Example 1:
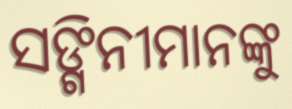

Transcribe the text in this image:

ସଙ୍ଗିନୀମାନଙ୍କୁ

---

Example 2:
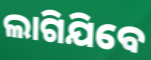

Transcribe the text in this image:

ଲାଗିଯିବେ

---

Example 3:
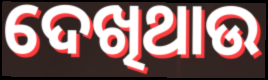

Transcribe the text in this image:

ଦେଖିଥାଉ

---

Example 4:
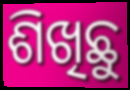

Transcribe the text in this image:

ଶିଖିଛୁ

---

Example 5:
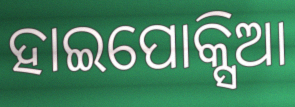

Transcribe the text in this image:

ହାଇପୋକ୍ସିଆ